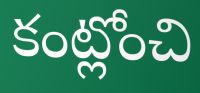
కంట్లోంచి